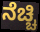
ನೆಚ್ಚಿ